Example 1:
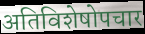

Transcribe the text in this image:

अतिविशेषोपचार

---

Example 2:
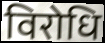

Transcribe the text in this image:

विरोधि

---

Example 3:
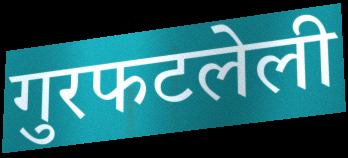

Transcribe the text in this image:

गुरफटलेली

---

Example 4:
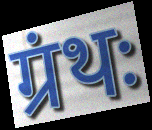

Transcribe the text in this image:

ग्रंथः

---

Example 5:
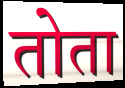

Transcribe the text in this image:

तोता